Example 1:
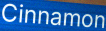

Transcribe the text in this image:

Cinnamon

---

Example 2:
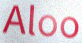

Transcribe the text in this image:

Aloo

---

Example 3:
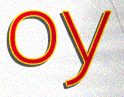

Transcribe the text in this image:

oy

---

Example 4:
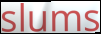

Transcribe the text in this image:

slums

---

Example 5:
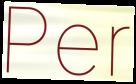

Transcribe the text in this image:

Per